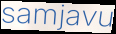
samjavu